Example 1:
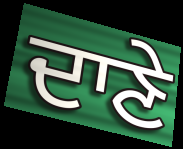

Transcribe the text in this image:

ਦਾਣੇ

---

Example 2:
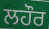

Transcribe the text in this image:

ਲਹੌਰ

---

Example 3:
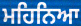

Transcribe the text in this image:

ਮਹਿਨਿਆ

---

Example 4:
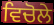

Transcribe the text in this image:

ਵਿਚੋਲੇ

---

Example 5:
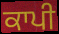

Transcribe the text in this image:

ਕਾਪੀ